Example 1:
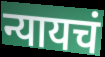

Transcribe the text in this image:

न्यायचं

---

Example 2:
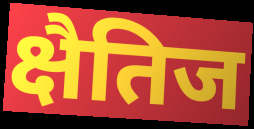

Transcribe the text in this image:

क्षैतिज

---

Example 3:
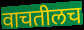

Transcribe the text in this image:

वाचतीलच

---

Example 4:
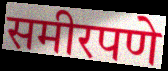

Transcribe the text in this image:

समीरपणे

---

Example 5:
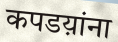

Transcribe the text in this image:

कपडय़ांना